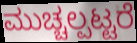
ಮುಚ್ಚಲ್ಪಟ್ಟರೆ